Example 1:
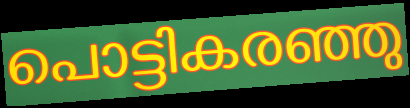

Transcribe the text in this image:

പൊട്ടികരഞ്ഞു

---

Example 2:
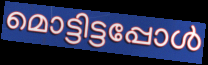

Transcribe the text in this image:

മൊട്ടിട്ടപ്പോൾ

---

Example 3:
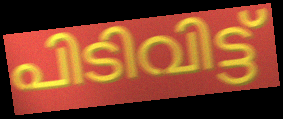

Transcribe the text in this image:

പിടിവിട്ട്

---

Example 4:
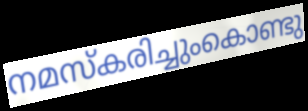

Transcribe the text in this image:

നമസ്കരിച്ചുംകൊണ്ടു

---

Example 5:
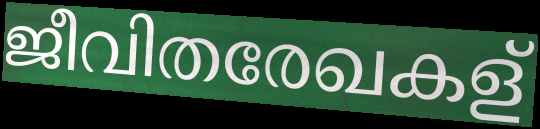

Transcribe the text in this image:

ജീവിതരേഖകള്